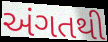
અંગતથી